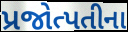
પ્રજોત્પતીના